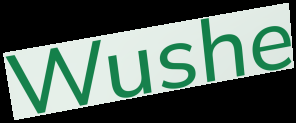
Wushe